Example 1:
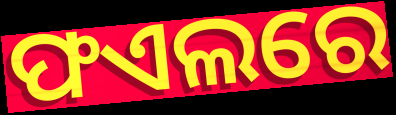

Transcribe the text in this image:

ଫଏଲରେ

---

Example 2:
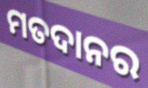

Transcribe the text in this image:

ମତଦାନର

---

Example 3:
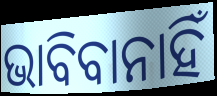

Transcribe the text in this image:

ଭାବିବାନାହିଁ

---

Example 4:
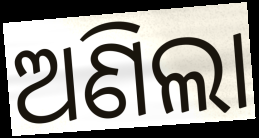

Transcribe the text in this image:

ଅଣିଲା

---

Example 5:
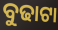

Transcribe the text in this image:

ବୁଢାଟା